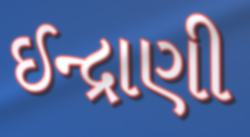
ઈન્દ્રાણી